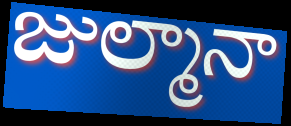
జుల్మానా